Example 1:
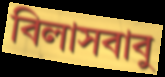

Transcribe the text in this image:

বিলাসবাবু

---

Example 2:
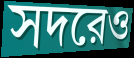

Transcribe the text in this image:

সদরেও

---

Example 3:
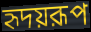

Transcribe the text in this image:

হৃদয়রূপ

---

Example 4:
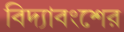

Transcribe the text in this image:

বিদ্যাবংশের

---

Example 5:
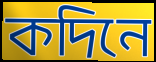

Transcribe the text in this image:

কদিনে